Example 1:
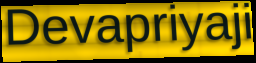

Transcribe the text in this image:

Devapriyaji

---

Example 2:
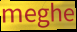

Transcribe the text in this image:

meghe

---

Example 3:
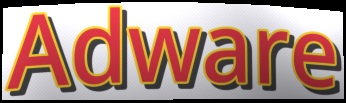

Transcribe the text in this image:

Adware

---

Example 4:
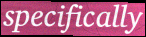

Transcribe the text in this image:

specifically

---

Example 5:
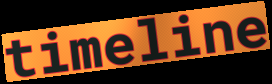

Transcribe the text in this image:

timeline